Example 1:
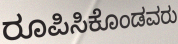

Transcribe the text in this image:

ರೂಪಿಸಿಕೊಂಡವರು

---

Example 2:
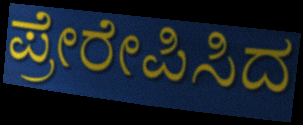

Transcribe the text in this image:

ಪ್ರೇರೇಪಿಸಿದ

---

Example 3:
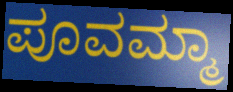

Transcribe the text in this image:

ಪೂವಮ್ಮಾ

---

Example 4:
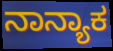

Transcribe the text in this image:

ನಾನ್ಯಾಕ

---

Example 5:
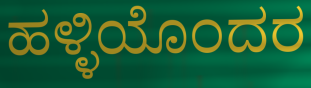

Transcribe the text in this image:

ಹಳ್ಳಿಯೊಂದರ